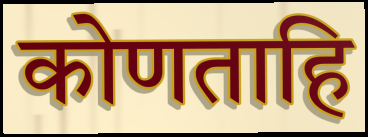
कोणताहि